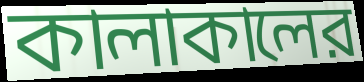
কালাকালের